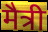
मैत्री